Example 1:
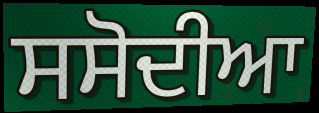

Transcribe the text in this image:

ਸਸੋਦੀਆ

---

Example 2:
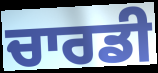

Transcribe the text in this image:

ਚਾਰਡੀ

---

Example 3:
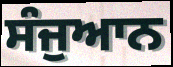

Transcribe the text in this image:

ਸੰਜੁਆਨ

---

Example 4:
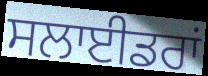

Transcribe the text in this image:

ਸਲਾਈਡਰਾਂ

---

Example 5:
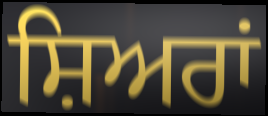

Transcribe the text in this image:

ਸ਼ਿਅਰਾਂ